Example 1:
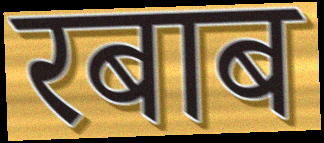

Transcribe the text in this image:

रबाब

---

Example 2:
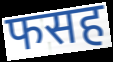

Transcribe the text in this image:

फसह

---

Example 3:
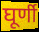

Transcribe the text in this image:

घूर्णी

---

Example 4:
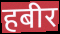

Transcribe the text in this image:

हबीर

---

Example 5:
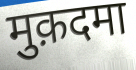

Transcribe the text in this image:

मुक़दमा